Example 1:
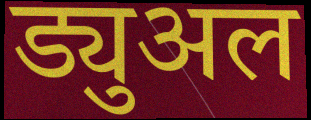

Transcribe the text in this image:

ड्युअल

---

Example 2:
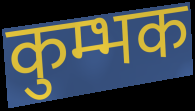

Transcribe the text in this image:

कुम्भक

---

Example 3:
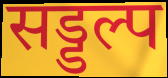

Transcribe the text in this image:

सड्डल्प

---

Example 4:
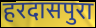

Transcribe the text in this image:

हरदासपुरा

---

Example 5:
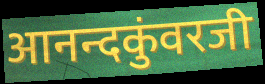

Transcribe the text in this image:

आनन्दकुंवरजी